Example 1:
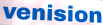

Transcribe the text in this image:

venision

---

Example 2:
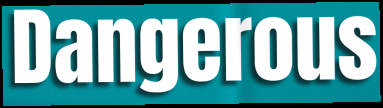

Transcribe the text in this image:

Dangerous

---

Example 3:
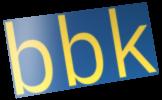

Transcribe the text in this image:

bbk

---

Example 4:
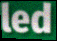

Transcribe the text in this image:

led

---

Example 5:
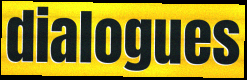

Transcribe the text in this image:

dialogues